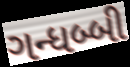
ગન્ધબ્બી